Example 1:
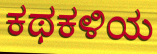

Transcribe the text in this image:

ಕಥಕಳಿಯ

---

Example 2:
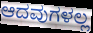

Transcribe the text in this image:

ಆದವುಗಳಲ್ಲ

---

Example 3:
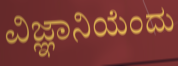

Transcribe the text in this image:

ವಿಜ್ಞಾನಿಯೆಂದು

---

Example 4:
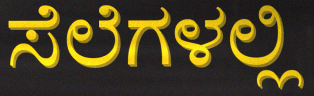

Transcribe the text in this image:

ಸೆಲೆಗಳಲ್ಲಿ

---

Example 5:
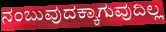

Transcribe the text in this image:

ನಂಬುವುದಕ್ಕಾಗುವುದಿಲ್ಲ